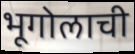
भूगोलाची